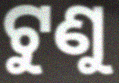
ଟୁଣୁ